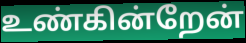
உண்கின்றேன்